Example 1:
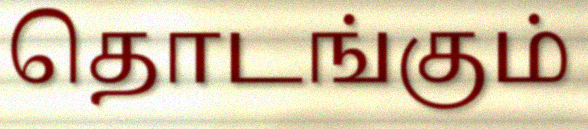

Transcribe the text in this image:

தொடங்கும்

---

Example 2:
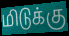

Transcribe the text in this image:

மிடுக்கு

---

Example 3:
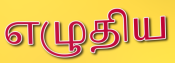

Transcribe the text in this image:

எழுதிய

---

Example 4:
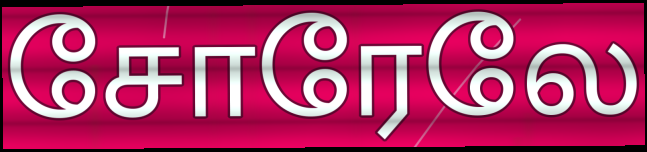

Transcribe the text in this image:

சோரேலே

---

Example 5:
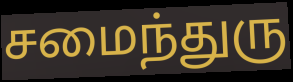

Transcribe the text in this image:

சமைந்துரு